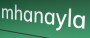
mhanayla